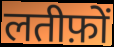
लतीफ़ों